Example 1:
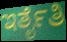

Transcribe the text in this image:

ಇರ್ತೈತಿ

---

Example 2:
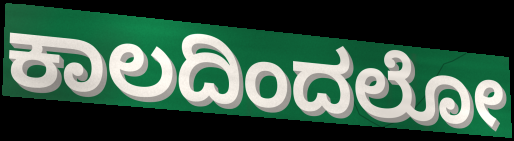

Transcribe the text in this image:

ಕಾಲದಿಂದಲೋ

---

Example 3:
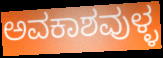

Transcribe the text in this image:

ಅವಕಾಶವುಳ್ಳ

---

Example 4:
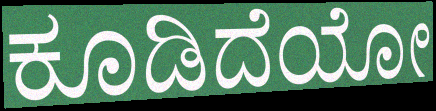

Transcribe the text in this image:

ಕೂಡಿದೆಯೋ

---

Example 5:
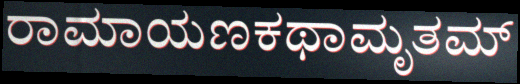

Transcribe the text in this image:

ರಾಮಾಯಣಕಥಾಮೃತಮ್